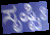
ಸೃಷ್ಟಿಃ